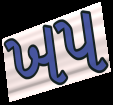
ખપ